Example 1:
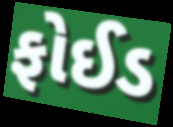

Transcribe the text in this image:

ફોઈડ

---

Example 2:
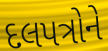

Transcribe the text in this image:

દલપત્રોને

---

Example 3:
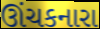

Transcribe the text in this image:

ઊંચકનારા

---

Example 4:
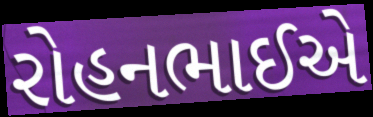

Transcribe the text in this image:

રોહનભાઈએ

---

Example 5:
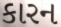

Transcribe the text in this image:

કારન